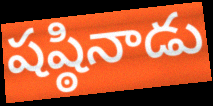
షష్ఠినాడు